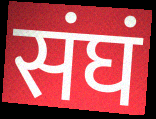
संघं